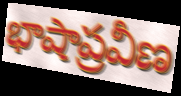
భాషాప్రవీణ